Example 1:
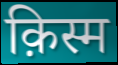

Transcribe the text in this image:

क़िस्‍म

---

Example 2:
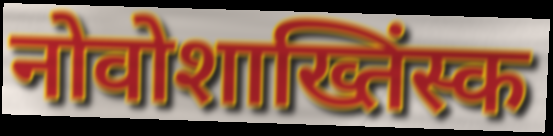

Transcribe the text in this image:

नोवोशाख्तिंस्क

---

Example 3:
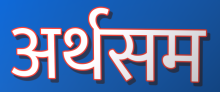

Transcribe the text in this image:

अर्थसम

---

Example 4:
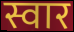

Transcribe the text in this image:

स्‍वार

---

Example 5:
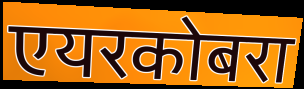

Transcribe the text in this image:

एयरकोबरा